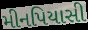
મીનપિયાસી